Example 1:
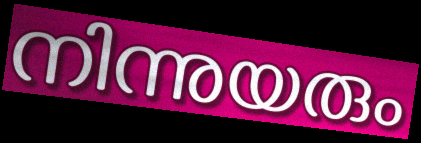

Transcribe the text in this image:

നിന്നുയരും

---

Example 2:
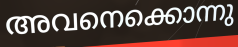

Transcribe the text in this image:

അവനെക്കൊന്നു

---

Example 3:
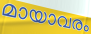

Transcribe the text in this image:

മായാവരം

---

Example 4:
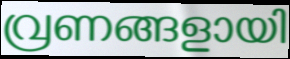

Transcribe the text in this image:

വ്രണങ്ങളായി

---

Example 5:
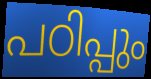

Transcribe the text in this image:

പഠിപ്പും